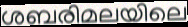
ശബരിമലയിലെ